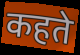
कहते